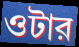
ওটার